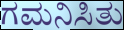
ಗಮನಿಸಿತು